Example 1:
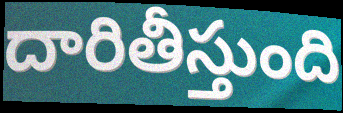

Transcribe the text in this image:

దారితీస్తుంది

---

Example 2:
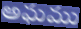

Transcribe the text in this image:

అఘము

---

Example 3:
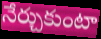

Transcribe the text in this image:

నేర్చుకుంటా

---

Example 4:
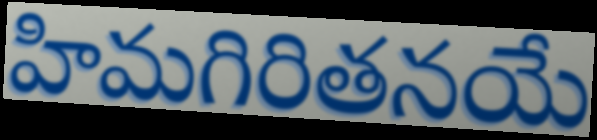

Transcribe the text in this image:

హిమగిరితనయే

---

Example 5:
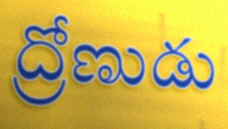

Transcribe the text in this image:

ద్రోణుడు